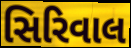
સિરિવાલ